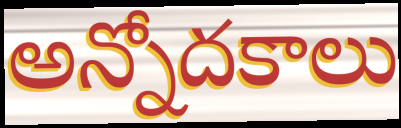
అన్నోదకాలు